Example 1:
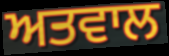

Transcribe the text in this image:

ਅਤਵਾਲ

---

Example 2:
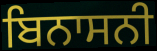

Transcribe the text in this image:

ਬਿਨਾਸਨੀ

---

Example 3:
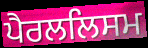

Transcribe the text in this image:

ਪੈਰਲਲਿਸਮ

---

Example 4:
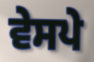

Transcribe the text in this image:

ਵੇਸਪੇ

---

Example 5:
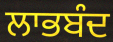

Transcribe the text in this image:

ਲਾਭਬੰਦ